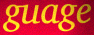
guage